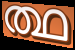
ത്ഥ